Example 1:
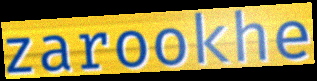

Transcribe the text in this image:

zarookhe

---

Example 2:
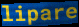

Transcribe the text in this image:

lipare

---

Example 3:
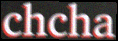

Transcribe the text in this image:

chcha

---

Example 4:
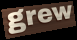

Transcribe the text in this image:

grew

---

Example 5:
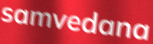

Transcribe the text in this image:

samvedana